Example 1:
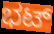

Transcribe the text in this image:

ಭಟ್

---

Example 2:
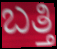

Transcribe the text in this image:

ಬತ್ತಿ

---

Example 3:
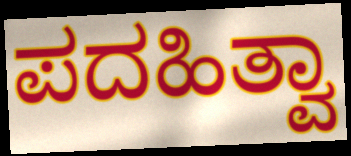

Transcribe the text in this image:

ಪದಹಿತ್ವಾ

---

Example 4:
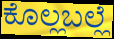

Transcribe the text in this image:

ಕೊಲ್ಲಬಲ್ಲೆ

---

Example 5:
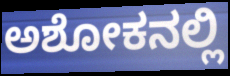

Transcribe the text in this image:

ಅಶೋಕನಲ್ಲಿ